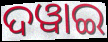
ଦୱାଇ